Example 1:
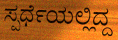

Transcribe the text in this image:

ಸ್ಪರ್ಧೆಯಲ್ಲಿದ್ದ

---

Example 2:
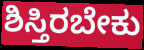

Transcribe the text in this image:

ಶಿಸ್ತಿರಬೇಕು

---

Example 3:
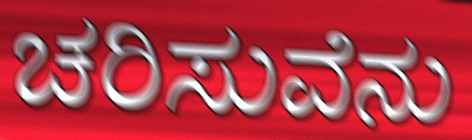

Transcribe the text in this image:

ಚರಿಸುವೆನು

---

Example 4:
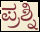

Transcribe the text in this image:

ಪ್ರಶ್ನಿ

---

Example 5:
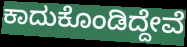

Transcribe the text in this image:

ಕಾದುಕೊಂಡಿದ್ದೇವೆ